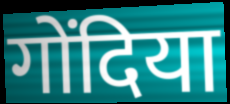
गोंदिया